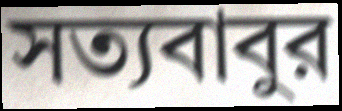
সত্যবাবুর